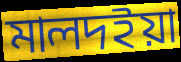
মালদইয়া